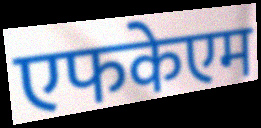
एफकेएम